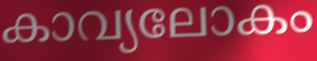
കാവ്യലോകം